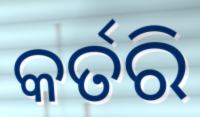
କର୍ତରି